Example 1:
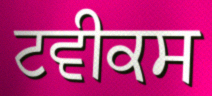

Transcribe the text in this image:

ਟਵੀਕਸ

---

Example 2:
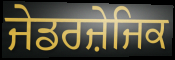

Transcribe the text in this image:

ਜੇਡਰਜ਼ੇਜਿਕ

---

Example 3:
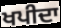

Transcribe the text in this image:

ਖਪੀਦਾ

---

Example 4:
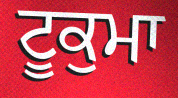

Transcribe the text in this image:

ਟੂਕੁਮਾ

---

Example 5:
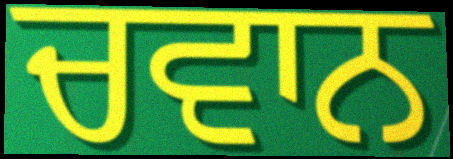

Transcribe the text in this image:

ਚਵਾਨ